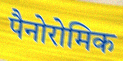
पैनोरोमिक